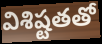
విశిష్టతతో